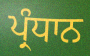
ਪ੍ਰੰਧਾਨ